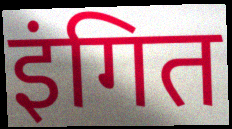
इंगित